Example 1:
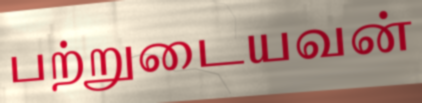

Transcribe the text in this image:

பற்றுடையவன்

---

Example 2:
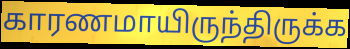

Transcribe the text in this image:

காரணமாயிருந்திருக்க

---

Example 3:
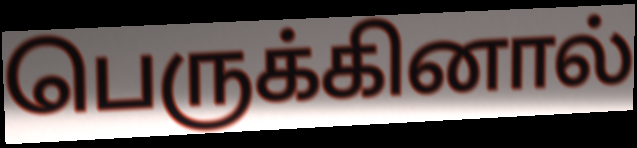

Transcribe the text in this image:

பெருக்கினால்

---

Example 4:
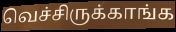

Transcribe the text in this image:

வெச்சிருக்காங்க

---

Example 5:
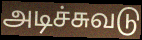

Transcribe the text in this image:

அடிச்சுவடு